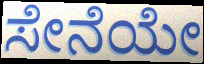
ಸೇನೆಯೇ